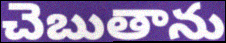
చెబుతాను